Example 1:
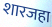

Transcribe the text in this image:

शारजहा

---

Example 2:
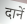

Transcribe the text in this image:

दानें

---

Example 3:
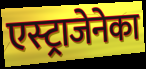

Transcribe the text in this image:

एस्‍ट्राजेनेका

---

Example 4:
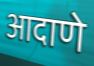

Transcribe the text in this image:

आदाणे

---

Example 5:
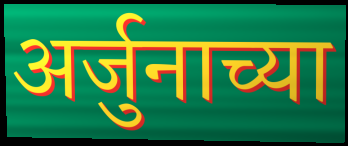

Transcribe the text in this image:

अर्जुनाच्या